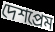
দেশপ্রেম